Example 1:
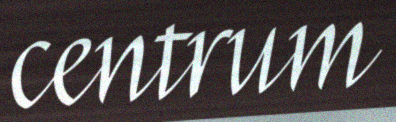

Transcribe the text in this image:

centrum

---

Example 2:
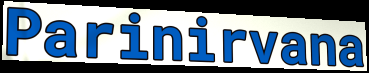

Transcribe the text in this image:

Parinirvana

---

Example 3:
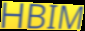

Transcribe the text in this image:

HBIM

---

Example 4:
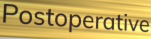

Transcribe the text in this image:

Postoperative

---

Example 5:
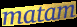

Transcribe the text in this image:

matam